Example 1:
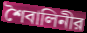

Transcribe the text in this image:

শৈবালিনীর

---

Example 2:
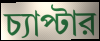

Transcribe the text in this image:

চ্যাপ্টার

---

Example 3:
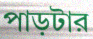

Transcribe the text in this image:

পাড়টার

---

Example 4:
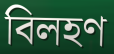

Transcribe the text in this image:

বিলহণ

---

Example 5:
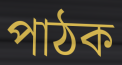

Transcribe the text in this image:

পাঠক